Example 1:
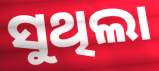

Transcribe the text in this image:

ସୁଥିଲା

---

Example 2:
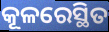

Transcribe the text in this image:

କୂଳରେସ୍ଥିତ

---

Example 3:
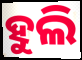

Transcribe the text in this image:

ହୁଲି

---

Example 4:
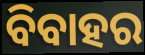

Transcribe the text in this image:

ବିବାହର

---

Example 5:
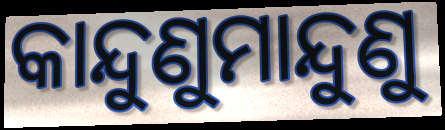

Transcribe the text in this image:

କାନ୍ଦୁଣୁମାନ୍ଦୁଣୁ